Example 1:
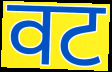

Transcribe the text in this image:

वट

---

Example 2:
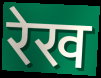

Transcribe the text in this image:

रेख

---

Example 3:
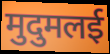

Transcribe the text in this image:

मुदुमलई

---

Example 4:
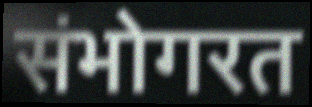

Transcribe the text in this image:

संभोगरत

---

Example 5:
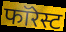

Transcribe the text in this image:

फॉरेस्ट